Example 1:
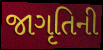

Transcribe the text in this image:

જાગૃતિની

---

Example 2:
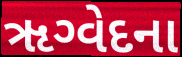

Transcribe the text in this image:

ૠગ્વેદના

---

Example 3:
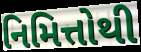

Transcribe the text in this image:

નિમિત્તોથી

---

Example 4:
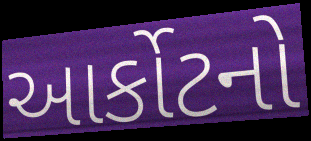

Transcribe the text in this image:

આર્કોટનો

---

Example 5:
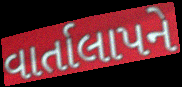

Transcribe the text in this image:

વાર્તાલાપને